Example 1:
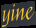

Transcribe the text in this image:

yine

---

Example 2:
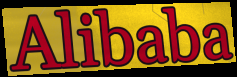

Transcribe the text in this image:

Alibaba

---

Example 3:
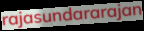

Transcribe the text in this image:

rajasundararajan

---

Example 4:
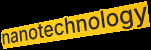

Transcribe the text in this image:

nanotechnology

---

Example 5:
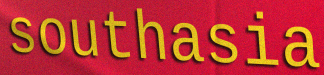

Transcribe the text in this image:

southasia